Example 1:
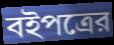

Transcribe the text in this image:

বইপত্রের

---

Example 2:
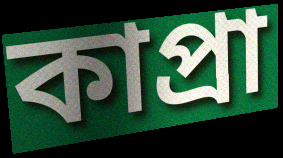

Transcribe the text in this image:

কাপ্রা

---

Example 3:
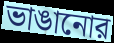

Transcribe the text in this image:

ভাঙানোর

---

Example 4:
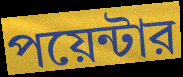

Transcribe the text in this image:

পয়েন্টার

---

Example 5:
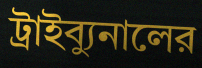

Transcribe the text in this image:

ট্রাইব্যুনালের